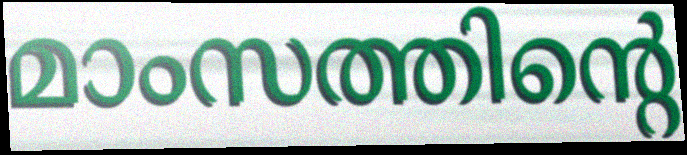
മാംസത്തിന്റെ